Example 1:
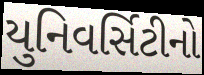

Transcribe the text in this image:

યુનિવર્સિટીનો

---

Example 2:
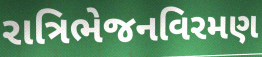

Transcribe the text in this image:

રાત્રિભેજનવિરમણ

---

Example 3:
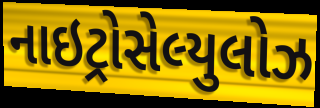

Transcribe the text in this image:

નાઇટ્રોસેલ્યુલોઝ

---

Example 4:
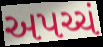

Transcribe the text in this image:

અપચ્ચં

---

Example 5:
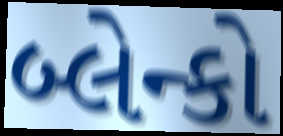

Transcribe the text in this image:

બ્લેન્કો